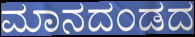
ಮಾನದಂಡದ